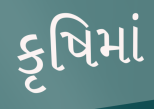
કૃષિમાં